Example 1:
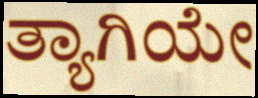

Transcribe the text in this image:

ತ್ಯಾಗಿಯೇ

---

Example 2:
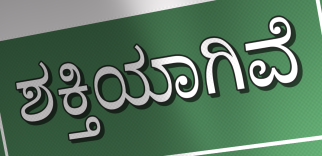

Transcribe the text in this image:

ಶಕ್ತಿಯಾಗಿವೆ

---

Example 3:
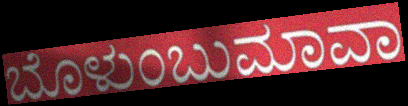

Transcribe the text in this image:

ಬೊಳುಂಬುಮಾವಾ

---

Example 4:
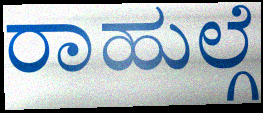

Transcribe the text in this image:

ರಾಹುಲ್ಗೆ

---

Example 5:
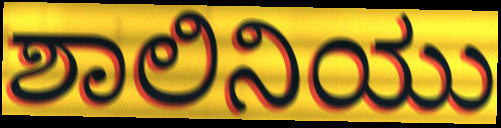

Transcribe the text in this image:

ಶಾಲಿನಿಯು